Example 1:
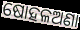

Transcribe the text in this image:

ଷୋହଳଅଣା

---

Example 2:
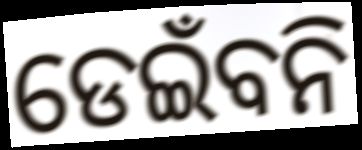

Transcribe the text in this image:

ଡେଇଁବନି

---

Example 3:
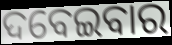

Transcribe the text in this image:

ଦବେଇବାର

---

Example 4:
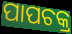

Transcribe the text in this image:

ପାପଚକ୍ର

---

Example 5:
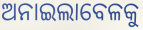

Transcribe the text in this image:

ଅନାଇଲାବେଳକୁ